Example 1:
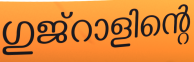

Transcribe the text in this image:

ഗുജ്റാളിന്റെ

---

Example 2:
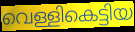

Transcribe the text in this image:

വെള്ളികെട്ടിയ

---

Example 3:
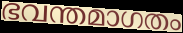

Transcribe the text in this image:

ഭവന്തമാഗതം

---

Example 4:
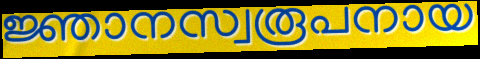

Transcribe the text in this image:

ജ്ഞാനസ്വരൂപനായ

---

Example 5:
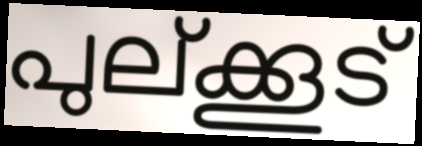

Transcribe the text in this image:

പുല്ക്കൂട്